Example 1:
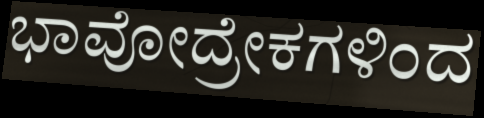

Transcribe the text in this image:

ಭಾವೋದ್ರೇಕಗಳಿಂದ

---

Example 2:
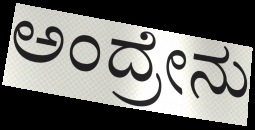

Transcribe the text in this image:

ಅಂದ್ರೇನು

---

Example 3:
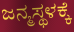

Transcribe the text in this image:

ಜನ್ಮಸ್ಥಳಕ್ಕೆ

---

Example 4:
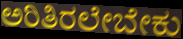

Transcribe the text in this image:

ಅರಿತಿರಲೇಬೇಕು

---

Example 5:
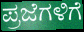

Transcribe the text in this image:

ಪ್ರಜೆಗಳಿಗೆ